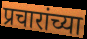
प्रचारांच्या